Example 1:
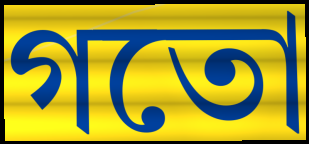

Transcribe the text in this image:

গতো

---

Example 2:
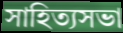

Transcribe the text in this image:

সাহিত্যসভা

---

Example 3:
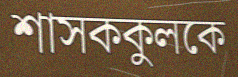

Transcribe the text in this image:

শাসককুলকে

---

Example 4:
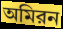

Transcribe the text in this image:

অমিরন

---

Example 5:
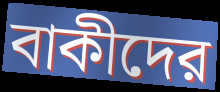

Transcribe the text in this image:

বাকীদের